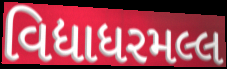
વિદ્યાધરમલ્લ